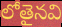
లోతైనవి